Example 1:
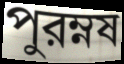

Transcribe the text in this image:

পুরম্নষ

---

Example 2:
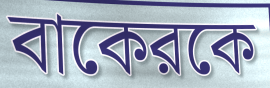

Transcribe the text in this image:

বাকেরকে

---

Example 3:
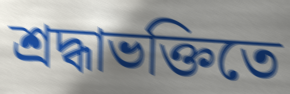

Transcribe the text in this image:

শ্রদ্ধাভক্তিতে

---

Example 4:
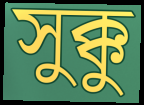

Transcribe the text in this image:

সুক্কু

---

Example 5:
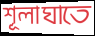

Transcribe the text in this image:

শূলাঘাতে